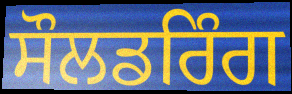
ਸੌਲਡਰਿੰਗ